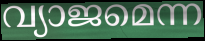
വ്യാജമെന്ന